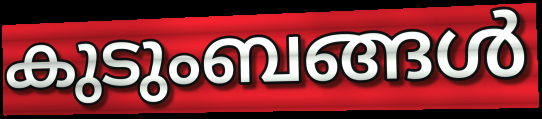
കുടുംബങ്ങൾ